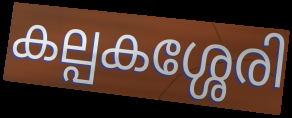
കല്പകശ്ശേരി